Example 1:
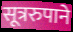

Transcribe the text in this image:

सूत्ररुपाने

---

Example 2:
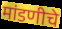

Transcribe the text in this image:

मांडणीचे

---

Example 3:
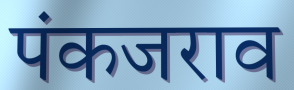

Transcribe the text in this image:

पंकजराव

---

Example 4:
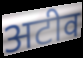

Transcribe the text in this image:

अटीव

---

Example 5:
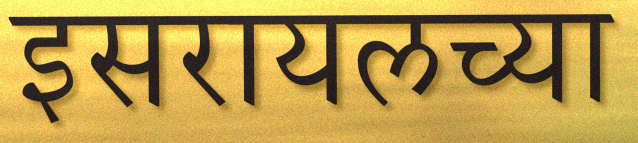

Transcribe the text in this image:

इसरायलच्या